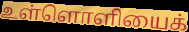
உள்ளொளியைக்